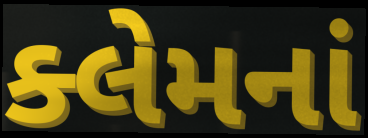
ક્લેમનાં